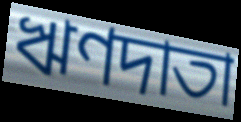
ঋণদাতা